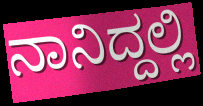
ನಾನಿದ್ದಲ್ಲಿ